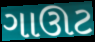
ગાઊટ